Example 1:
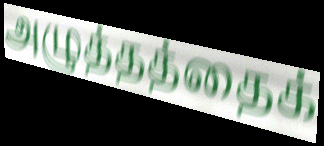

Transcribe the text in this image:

அழுத்தத்தைக்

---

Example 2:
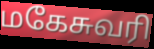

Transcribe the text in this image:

மகேசுவரி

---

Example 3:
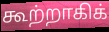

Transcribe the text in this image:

கூற்றாகிக்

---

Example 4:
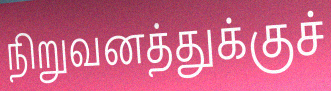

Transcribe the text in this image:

நிறுவனத்துக்குச்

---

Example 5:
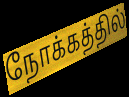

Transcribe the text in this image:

நோக்கத்தில்